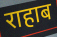
राहाब